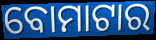
ବୋମାଟାର